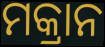
ମକ୍ରାନ